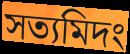
সত্যমিদং